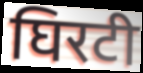
घिरटी